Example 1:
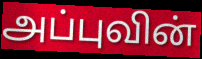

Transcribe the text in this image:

அப்புவின்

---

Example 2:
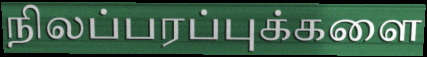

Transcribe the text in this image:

நிலப்பரப்புக்களை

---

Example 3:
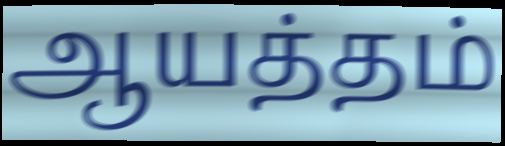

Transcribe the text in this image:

ஆயத்தம்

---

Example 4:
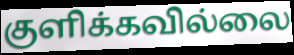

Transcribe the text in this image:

குளிக்கவில்லை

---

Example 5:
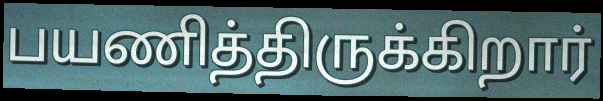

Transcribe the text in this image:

பயணித்திருக்கிறார்